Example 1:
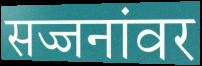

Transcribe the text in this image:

सज्जनांवर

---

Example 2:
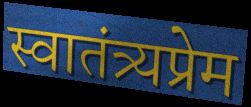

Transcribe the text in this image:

स्वातंत्र्यप्रेम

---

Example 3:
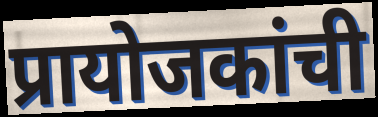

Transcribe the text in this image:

प्रायोजकांची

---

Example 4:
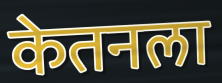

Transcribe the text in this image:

केतनला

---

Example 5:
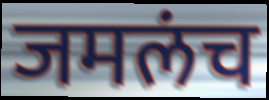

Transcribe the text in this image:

जमलंच